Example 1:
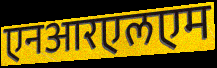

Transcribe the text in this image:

एनआरएलएम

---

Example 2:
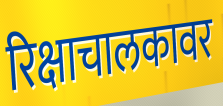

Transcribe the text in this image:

रिक्षाचालकावर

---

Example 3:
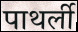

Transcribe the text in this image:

पाथर्ली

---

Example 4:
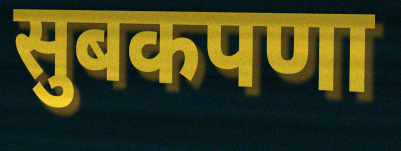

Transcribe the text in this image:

सुबकपणा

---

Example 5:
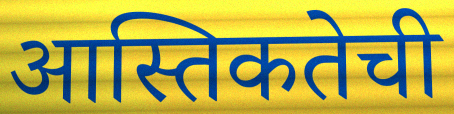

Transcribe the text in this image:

आस्तिकतेची